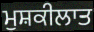
ਮੁਸ਼ਕੀਲਾਤ